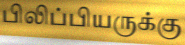
பிலிப்பியருக்கு